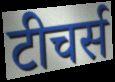
टीचर्स